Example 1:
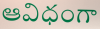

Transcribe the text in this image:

ఆవిధంగా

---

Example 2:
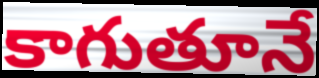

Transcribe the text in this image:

కాగుతూనే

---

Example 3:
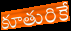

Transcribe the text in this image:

కూతురికే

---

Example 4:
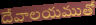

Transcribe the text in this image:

దేవాలయముతో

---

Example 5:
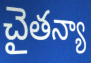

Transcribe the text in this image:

చైతన్యా